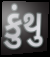
કુંથુ